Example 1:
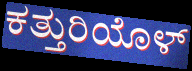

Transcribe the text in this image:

ಕತ್ತುರಿಯೊಳ್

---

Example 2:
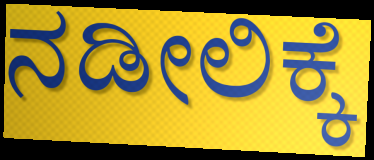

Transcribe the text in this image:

ನಡೀಲಿಕ್ಕೆ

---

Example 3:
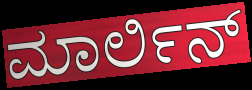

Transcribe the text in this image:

ಮಾರ್ಲಿನ್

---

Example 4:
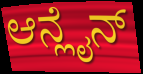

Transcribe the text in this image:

ಆನ್ಲೈನ್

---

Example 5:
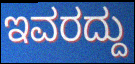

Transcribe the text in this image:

ಇವರದ್ದು